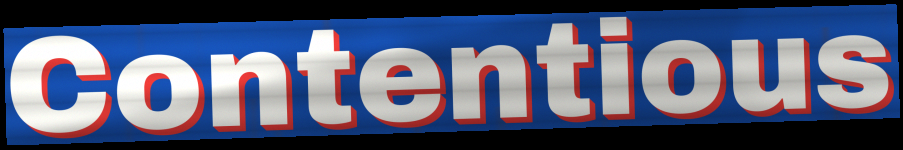
Contentious